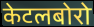
केटलबोरो